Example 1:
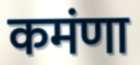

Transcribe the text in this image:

कमंणा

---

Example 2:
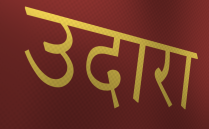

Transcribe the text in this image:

उदारा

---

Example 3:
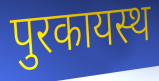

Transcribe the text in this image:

पुरकायस्थ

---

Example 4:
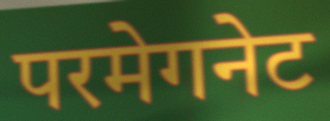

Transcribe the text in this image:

परमेगनेट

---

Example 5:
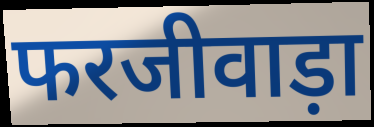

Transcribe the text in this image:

फरजीवाड़ा